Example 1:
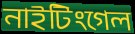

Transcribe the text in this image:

নাইটিংগেল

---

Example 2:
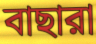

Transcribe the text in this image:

বাছারা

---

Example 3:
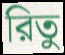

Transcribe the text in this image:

রিতু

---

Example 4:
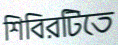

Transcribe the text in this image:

শিবিরটিতে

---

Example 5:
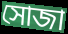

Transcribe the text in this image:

সোজা